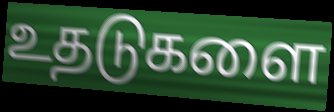
உதடுகளை